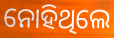
ନୋହିଥିଲେ